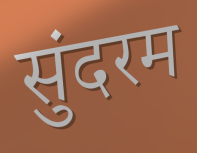
सुंदरम